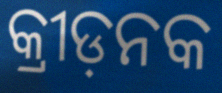
କ୍ରୀଡ଼ନକ